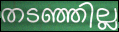
തടഞ്ഞില്ല